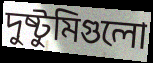
দুষ্টুমিগুলো